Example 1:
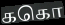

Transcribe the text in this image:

ககொ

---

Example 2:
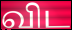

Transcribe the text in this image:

விட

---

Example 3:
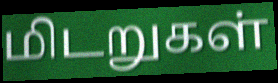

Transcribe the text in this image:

மிடறுகள்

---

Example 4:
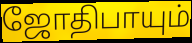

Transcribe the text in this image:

ஜோதிபாயும்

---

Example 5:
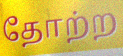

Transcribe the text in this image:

தோற்ற